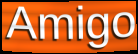
Amigo